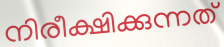
നിരീക്ഷിക്കുന്നത്